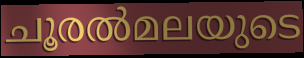
ചൂരൽമലയുടെ